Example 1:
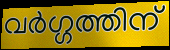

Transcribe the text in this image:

വർഗ്ഗത്തിന്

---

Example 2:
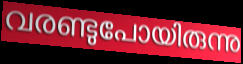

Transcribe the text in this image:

വരണ്ടുപോയിരുന്നു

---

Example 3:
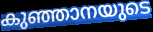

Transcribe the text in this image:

കുഞ്ഞാനയുടെ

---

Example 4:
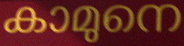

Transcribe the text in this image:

കാമുനെ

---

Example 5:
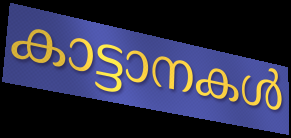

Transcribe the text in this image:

കാട്ടാനകൾ